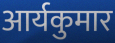
आर्यकुमार